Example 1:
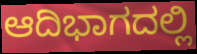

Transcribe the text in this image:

ಆದಿಭಾಗದಲ್ಲಿ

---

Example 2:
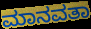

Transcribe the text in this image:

ಮಾನವತಾ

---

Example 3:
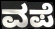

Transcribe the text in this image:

ವಪೆ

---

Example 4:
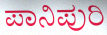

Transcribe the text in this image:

ಪಾನಿಪುರಿ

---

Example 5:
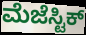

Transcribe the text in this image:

ಮೆಜೆಸ್ಟಿಕ್